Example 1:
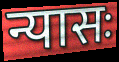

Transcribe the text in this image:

न्यासः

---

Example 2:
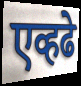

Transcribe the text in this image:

एव्हढे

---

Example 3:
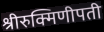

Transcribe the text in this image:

श्रीरुक्मिणीपती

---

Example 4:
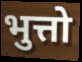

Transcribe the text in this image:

भुत्तो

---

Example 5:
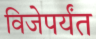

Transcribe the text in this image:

विजेपर्यंत